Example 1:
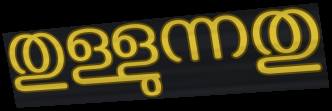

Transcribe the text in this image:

തുള്ളുന്നതു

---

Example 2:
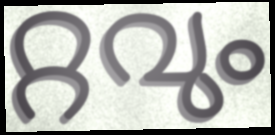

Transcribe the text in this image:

റ്റവും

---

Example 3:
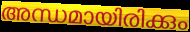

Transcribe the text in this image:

അന്ധമായിരിക്കും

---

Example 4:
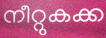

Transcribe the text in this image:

നീറ്റുകക്ക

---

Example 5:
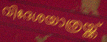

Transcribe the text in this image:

വിദേശയാത്രയ്ക്ക്